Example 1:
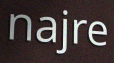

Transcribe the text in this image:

najre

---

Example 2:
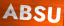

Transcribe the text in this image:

ABSU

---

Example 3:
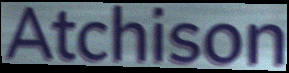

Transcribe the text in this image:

Atchison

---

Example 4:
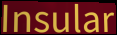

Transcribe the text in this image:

Insular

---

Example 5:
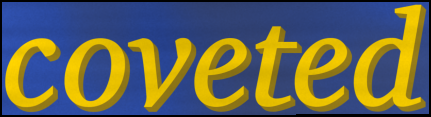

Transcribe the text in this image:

coveted